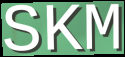
SKM